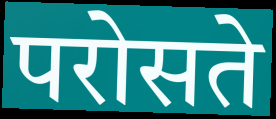
परोसते